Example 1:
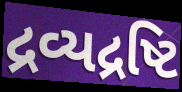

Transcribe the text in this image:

દ્રવ્યદ્રષ્ટિ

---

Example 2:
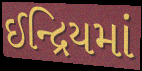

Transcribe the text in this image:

ઈન્દ્રિયમાં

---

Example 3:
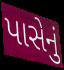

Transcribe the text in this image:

પાસેનું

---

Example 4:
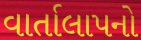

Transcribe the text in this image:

વાર્તાલાપનો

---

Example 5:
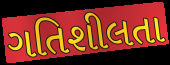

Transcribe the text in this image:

ગતિશીલતા